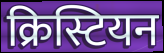
क्रिस्टियन